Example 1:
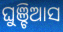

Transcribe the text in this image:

ଘୁଞ୍ଚିଆସ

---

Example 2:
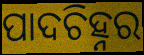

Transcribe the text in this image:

ପାଦଚିହ୍ନର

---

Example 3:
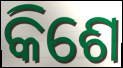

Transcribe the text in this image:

କିଶେ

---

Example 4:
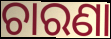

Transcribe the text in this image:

ଚାରଣା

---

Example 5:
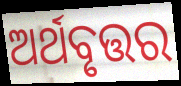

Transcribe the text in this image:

ଅର୍ଥବୃତ୍ତର